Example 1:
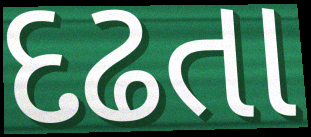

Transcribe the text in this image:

દઢતા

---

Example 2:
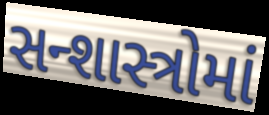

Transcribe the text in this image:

સન્શાસ્ત્રોમાં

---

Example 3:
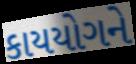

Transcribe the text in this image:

કાયયોગને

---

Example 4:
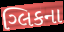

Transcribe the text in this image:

ગ્લિકના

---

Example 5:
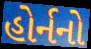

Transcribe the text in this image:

હોર્નનો